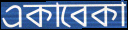
একাবেকা